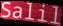
Salil